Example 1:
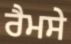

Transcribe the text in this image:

ਰੈਮਸੇ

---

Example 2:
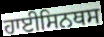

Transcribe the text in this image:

ਹਾਈਸਿਨਥਸ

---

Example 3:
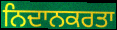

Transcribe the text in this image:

ਨਿਦਾਨਕਰਤਾ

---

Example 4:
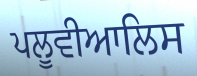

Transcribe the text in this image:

ਪਲੂਵੀਆਲਿਸ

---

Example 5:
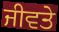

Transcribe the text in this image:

ਜੀਵਤੇ